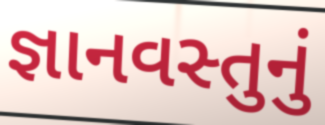
જ્ઞાનવસ્તુનું